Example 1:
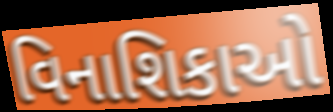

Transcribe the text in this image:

વિનાશિકાઓ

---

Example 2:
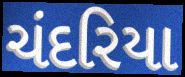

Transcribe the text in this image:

ચંદરિયા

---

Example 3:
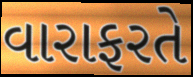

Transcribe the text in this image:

વારાફરતે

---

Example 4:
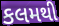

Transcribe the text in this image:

કલમથી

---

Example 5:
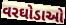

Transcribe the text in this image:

વરઘોડાઓ